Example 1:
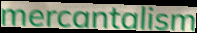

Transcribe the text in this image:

mercantalism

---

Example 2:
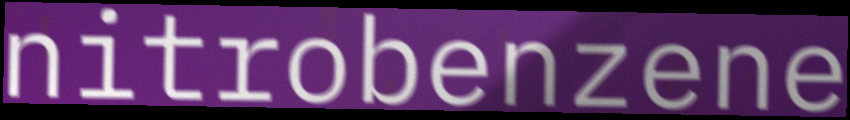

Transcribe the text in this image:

nitrobenzene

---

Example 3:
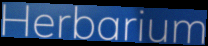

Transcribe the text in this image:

Herbarium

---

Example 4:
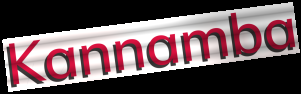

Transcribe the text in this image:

Kannamba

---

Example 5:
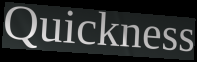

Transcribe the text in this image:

Quickness